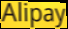
Alipay